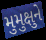
મુમુક્ષુને